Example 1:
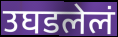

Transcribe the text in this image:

उघडलेलं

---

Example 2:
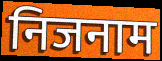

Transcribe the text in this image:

निजनाम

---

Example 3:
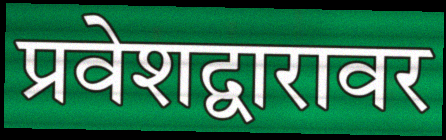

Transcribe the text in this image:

प्रवेशद्वारावर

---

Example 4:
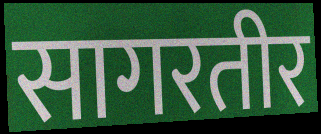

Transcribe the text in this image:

सागरतीर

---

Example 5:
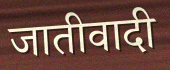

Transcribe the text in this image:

जातीवादी